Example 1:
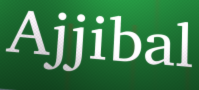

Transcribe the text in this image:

Ajjibal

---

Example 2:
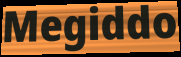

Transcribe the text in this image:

Megiddo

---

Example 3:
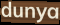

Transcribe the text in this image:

dunya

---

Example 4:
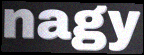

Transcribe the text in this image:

nagy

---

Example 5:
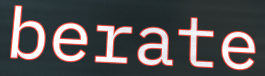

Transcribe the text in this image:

berate